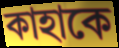
কাহাকে